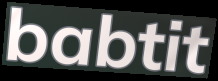
babtit